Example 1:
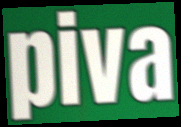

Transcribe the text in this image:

piva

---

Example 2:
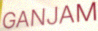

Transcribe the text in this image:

GANJAM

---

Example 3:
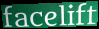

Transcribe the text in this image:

facelift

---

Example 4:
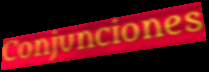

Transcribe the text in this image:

Conjunciones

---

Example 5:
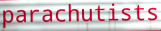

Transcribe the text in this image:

parachutists